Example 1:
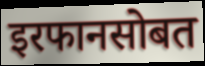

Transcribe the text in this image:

इरफानसोबत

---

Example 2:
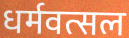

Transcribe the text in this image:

धर्मवत्सल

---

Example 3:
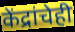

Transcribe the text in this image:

केंद्रांचेही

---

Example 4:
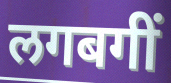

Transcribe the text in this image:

लगबगीं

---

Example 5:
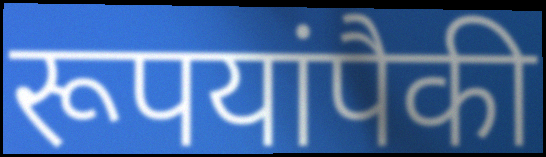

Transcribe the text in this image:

रूपयांपैकी